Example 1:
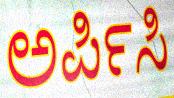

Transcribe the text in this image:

ಅರ್ಪಿಸಿ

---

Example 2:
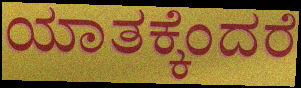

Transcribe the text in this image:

ಯಾತಕ್ಕೆಂದರೆ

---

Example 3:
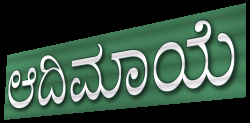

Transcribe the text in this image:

ಆದಿಮಾಯೆ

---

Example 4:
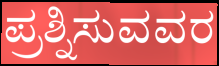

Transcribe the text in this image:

ಪ್ರಶ್ನಿಸುವವರ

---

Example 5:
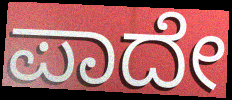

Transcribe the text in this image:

ಪಾದೇ